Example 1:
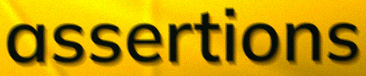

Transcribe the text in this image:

assertions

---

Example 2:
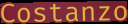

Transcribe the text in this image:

Costanzo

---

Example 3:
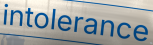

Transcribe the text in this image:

intolerance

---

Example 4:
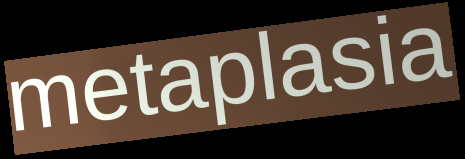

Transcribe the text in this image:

metaplasia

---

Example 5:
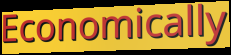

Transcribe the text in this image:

Economically